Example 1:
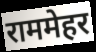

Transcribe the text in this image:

राममेहर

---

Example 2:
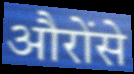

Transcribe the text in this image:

औरोंसे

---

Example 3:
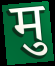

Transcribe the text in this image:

मु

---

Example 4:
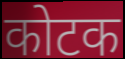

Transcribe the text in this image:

कोटक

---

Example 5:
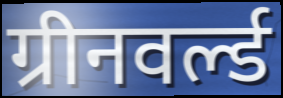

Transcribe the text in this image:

ग्रीनवर्ल्ड